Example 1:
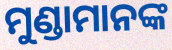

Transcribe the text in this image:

ମୁଣ୍ଡାମାନଙ୍କ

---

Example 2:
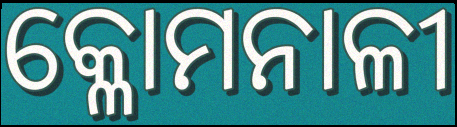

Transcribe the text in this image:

କ୍ଳୋମନାଳୀ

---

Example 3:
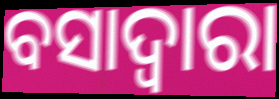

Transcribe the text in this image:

ବସାଦ୍ୱାରା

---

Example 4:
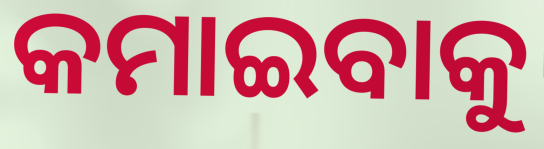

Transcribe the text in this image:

କମାଇବାକୁ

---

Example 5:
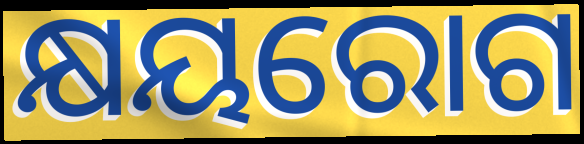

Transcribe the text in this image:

କ୍ଷୟରୋଗ